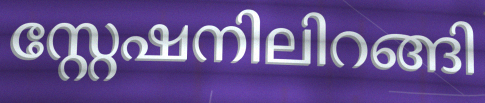
സ്റ്റേഷനിലിറങ്ങി